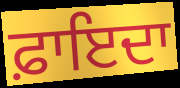
ਫ਼ਾਇਦਾ